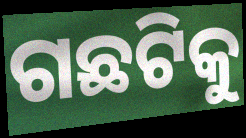
ଗଛଟିକୁ